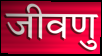
जीवणु